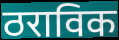
ठराविक